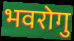
भवरोगु